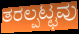
ತರಲ್ಪಟ್ಟವು